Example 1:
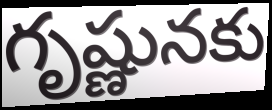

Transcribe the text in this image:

గృష్ణునకు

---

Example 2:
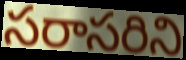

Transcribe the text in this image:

సరాసరిని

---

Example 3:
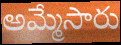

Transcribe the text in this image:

అమ్మేసారు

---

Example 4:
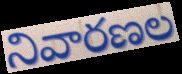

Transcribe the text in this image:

నివారణల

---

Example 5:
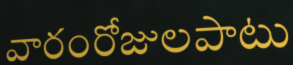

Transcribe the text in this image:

వారంరోజులపాటు